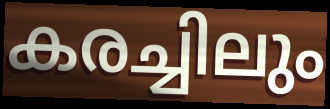
കരച്ചിലും